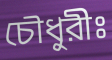
চৌধুরীঃ